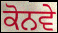
ਕੋਨਵੇ